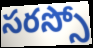
సరస్సో